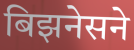
बिझनेसने